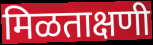
मिळताक्षणी